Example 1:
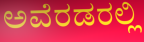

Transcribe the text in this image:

ಅವೆರಡರಲ್ಲಿ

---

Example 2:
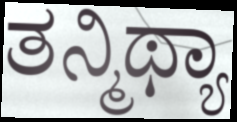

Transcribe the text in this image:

ತನ್ಮಿಥ್ಯಾ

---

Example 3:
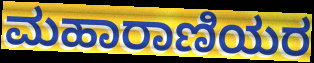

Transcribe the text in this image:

ಮಹಾರಾಣಿಯರ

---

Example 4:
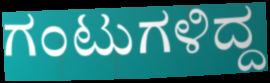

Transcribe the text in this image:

ಗಂಟುಗಳಿದ್ದ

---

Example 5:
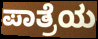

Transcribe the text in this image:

ಪಾತ್ರೆಯ